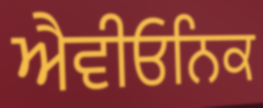
ਐਵੀਓਨਿਕ